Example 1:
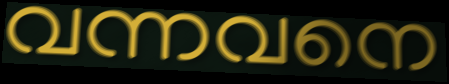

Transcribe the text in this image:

വന്നവനെ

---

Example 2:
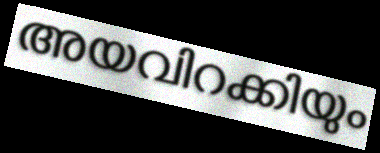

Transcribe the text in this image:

അയവിറക്കിയും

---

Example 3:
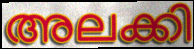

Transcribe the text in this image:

അലക്കി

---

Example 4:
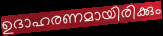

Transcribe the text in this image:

ഉദാഹരണമായിരിക്കും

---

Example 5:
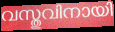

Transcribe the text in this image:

വസ്തുവിനായി